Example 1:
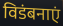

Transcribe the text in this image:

विडंबनाएं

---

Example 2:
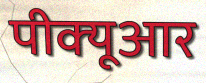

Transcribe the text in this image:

पीक्यूआर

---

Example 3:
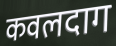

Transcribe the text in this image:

कवलदाग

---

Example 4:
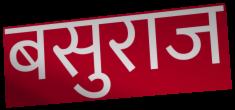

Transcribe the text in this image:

बसुराज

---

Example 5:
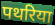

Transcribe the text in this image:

पथरिया